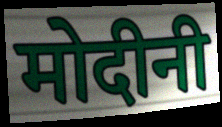
मोदीनी